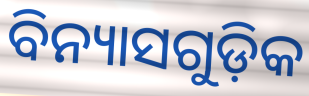
ବିନ୍ୟାସଗୁଡ଼ିକ